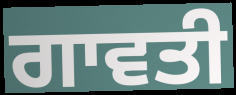
ਗਾਵਤੀ